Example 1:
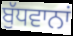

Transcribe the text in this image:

ਬੁੱਧਵਾਨਾਂ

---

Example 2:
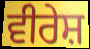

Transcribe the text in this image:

ਵੀਰੇਸ਼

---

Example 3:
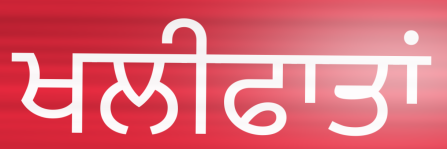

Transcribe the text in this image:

ਖਲੀਫਾਤਾਂ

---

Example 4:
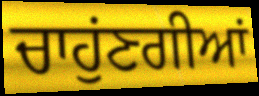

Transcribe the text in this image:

ਚਾਹੁਂਣਗੀਆਂ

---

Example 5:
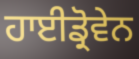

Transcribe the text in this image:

ਹਾਈਡ੍ਰੋਵੇਨ